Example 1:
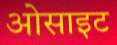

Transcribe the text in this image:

ओसाइट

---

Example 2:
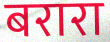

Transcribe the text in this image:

बरारा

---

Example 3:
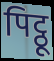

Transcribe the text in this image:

पिट्ठू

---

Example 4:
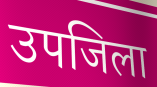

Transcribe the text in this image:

उपजिला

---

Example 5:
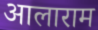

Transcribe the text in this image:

आलाराम